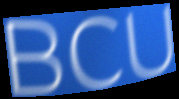
BCU